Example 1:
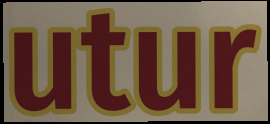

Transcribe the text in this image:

utur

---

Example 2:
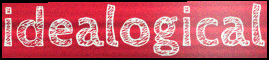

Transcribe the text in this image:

idealogical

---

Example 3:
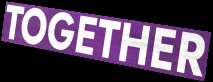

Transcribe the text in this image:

TOGETHER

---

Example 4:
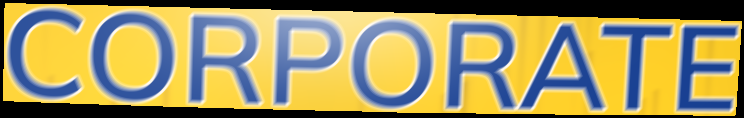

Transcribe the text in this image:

CORPORATE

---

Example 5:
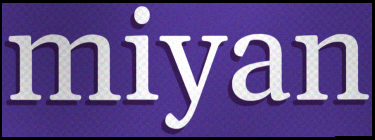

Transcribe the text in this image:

miyan